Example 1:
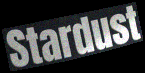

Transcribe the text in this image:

Stardust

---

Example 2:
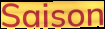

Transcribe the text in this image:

Saison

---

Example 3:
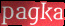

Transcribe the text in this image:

pagka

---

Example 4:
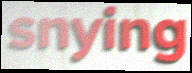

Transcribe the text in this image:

snying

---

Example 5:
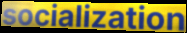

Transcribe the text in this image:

socialization